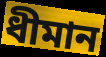
ধীমান